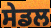
ਸੇਡਲ